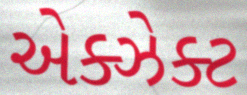
એક્ઝેક્ટ